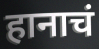
हानाचं